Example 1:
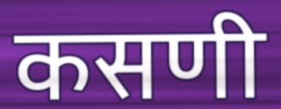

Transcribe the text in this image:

कसणी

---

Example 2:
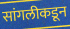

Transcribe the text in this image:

सांगलीकडून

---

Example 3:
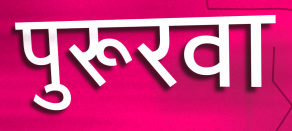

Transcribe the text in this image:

पुरूरवा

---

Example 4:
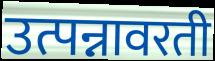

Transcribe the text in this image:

उत्पन्नावरती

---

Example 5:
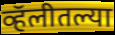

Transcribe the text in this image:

व्हॅलीतल्या